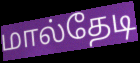
மால்தேடி